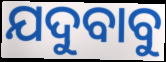
ଯଦୁବାବୁ